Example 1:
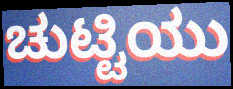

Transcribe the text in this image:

ಚುಟ್ಟಿಯು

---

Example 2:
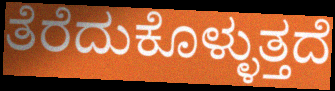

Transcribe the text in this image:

ತೆರೆದುಕೊಳ್ಳುತ್ತದೆ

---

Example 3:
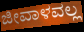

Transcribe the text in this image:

ಜೀವಾಳವಲ್ಲ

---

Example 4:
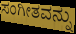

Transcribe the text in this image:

ಸಂಗೀತವನ್ನು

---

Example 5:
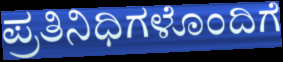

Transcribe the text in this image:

ಪ್ರತಿನಿಧಿಗಳೊಂದಿಗೆ